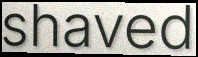
shaved